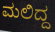
ಮಲಿದ್ದ